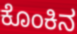
ಕೊಂಕಿನ